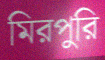
মিরপুরি